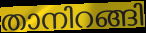
താനിറങ്ങി